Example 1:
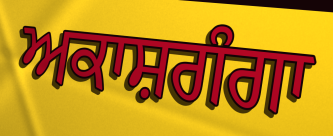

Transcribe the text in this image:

ਅਕਾਸ਼ਗੰਗਾ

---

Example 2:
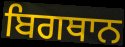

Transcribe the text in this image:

ਬਿਗਥਾਨ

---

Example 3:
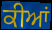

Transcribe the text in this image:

ਕੀਆਂ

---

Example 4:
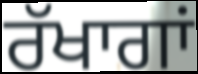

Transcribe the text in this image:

ਰੱਖਾਗਾਂ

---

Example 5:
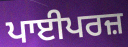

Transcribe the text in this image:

ਪਾਈਪਰਜ਼